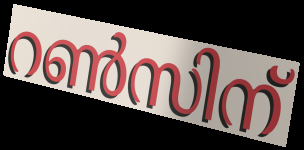
റൺസിന്